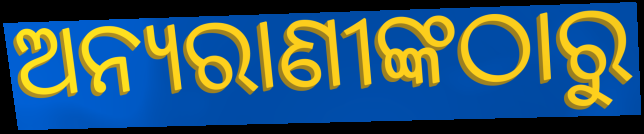
ଅନ୍ୟରାଣୀଙ୍କଠାରୁ